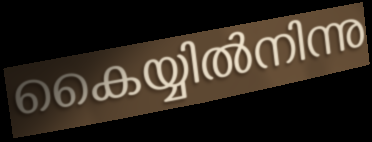
കൈയ്യിൽനിന്നു